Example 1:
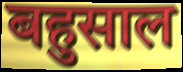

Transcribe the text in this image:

बहुसाल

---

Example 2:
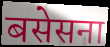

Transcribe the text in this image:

बसेसना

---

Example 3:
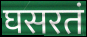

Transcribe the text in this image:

घसरतं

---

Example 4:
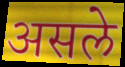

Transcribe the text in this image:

असले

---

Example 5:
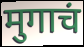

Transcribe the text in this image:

मुगाचं